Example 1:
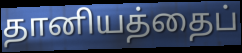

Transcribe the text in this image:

தானியத்தைப்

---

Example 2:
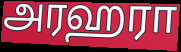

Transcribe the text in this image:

அரஹரா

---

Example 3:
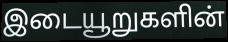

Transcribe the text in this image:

இடையூறுகளின்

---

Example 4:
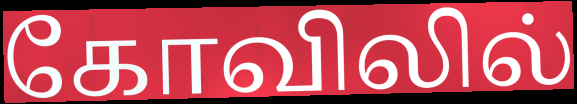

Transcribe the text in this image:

கோவிலில்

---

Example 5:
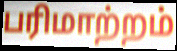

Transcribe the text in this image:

பரிமாற்றம்